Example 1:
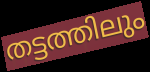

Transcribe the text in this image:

തട്ടത്തിലും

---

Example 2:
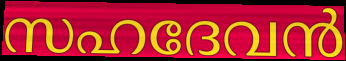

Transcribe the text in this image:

സഹദേവൻ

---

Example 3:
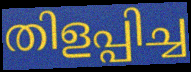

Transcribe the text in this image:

തിളപ്പിച്ച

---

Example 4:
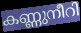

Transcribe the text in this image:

കണ്ണുനീറി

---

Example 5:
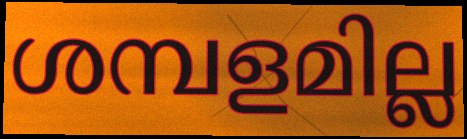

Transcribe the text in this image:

ശമ്പളമില്ല